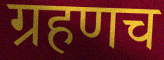
ग्रहणच